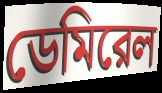
ডেমিরেল